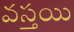
వస్తయి